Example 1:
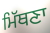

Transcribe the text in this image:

ਮਿੱਥਣਾ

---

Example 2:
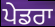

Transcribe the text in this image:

ਪੇਡਰਾ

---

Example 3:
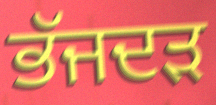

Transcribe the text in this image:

ਭੱਜਦੜ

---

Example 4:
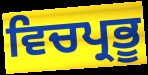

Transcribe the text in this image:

ਵਿਚਪ੍ਰਭੂ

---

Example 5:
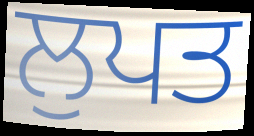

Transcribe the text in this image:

ਲੁਪਤ